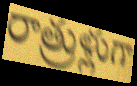
రాత్రుళ్లుగా